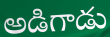
అడిగాడు